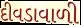
દીવડાવાળી